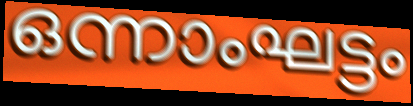
ഒന്നാംഘട്ടം